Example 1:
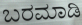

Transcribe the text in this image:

ಬರಮಾಡಿ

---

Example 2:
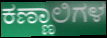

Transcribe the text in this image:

ಕಣ್ಣಾಲಿಗಳ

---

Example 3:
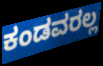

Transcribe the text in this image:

ಕಂಡವರಲ್ಲ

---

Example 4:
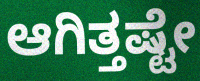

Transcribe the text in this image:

ಆಗಿತ್ತಷ್ಟೇ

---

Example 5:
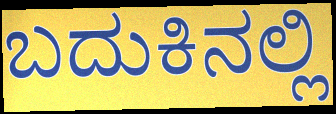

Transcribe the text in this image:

ಬದುಕಿನಲ್ಲಿ